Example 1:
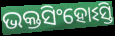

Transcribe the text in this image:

ଭକ୍ତସିଂହୋଽସ୍ତି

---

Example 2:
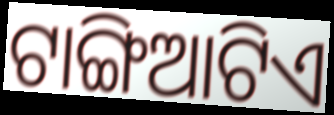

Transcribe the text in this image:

ଟାଙ୍ଗିଆଟିଏ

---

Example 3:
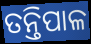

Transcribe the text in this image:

ତନ୍ତିପାଳ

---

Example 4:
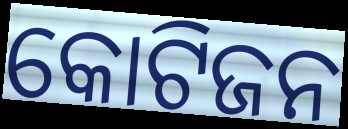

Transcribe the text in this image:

କୋଟିଜନ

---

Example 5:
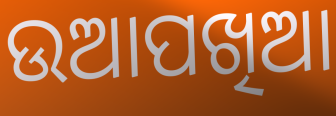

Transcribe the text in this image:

ଉଆପଖିଆ